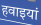
हवाइयां